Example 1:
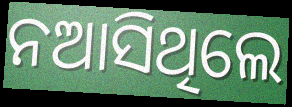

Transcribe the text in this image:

ନଆସିଥିଲେ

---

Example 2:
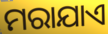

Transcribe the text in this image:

ମରାଯାଏ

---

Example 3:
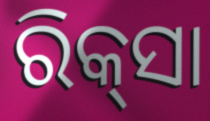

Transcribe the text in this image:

ରିକ୍‌ସା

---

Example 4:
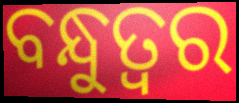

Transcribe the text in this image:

ବନ୍ଧୁତ୍ବର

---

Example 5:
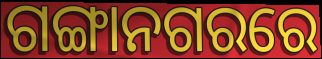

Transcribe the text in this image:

ଗଙ୍ଗାନଗରରେ